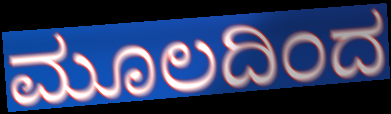
ಮೂಲದಿಂದ